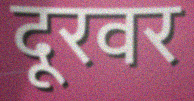
दूरवर